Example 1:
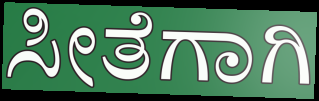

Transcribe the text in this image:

ಸೀತೆಗಾಗಿ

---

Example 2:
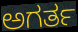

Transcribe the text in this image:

ಅಗರ್ತ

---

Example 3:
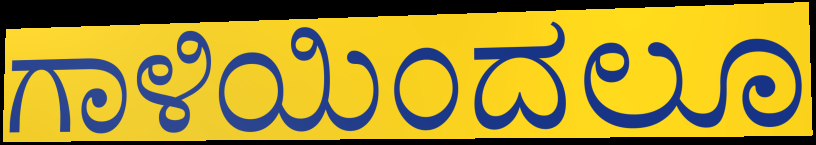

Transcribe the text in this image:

ಗಾಳಿಯಿಂದಲೂ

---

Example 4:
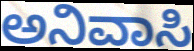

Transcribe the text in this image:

ಅನಿವಾಸಿ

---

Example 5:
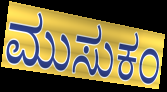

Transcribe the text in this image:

ಮುಸುಕಂ